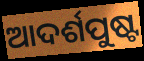
ଆଦର୍ଶପୁଷ୍ଟ